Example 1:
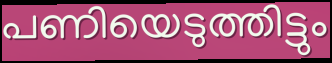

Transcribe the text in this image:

പണിയെടുത്തിട്ടും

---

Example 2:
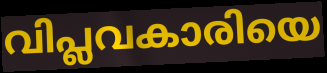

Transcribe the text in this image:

വിപ്ലവകാരിയെ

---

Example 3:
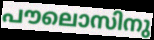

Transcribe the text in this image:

പൗലൊസിനു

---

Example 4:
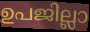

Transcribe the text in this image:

ഉപജില്ലാ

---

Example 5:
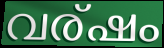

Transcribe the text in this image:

വര്ഷം